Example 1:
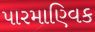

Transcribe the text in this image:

પારમાણ્વિક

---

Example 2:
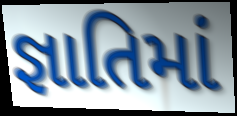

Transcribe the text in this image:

જ્ઞાતિમાં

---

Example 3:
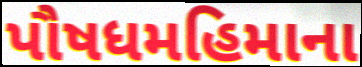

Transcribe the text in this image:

પૌષધમહિમાના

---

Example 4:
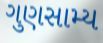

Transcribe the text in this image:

ગુણસામ્ય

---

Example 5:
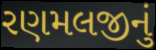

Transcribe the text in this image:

રણમલજીનું